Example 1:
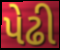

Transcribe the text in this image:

પેઢી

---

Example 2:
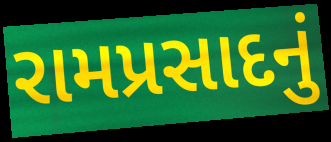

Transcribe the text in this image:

રામપ્રસાદનું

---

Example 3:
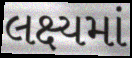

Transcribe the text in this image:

લક્ષ્યમાં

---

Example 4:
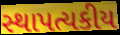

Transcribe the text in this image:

સ્થાપત્યકીય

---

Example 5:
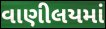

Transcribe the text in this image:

વાણીલયમાં